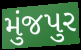
મુંજપુર